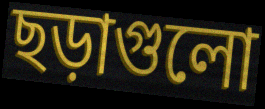
ছড়াগুলো